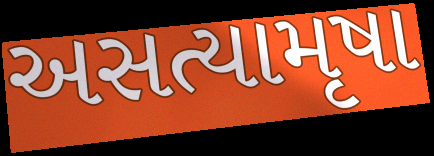
અસત્યામૃષા